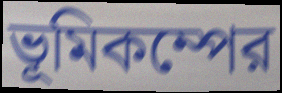
ভূমিকম্পের